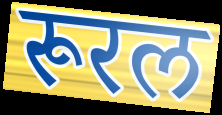
रूरल